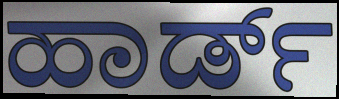
ಹಾರ್ಡ್